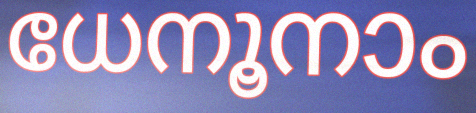
ധേനൂനാം